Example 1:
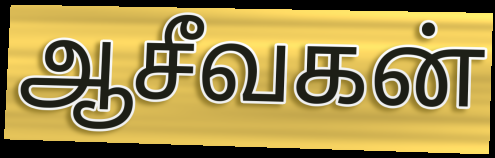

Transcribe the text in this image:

ஆசீவகன்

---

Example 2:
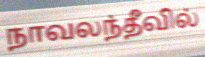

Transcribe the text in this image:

நாவலந்தீவில்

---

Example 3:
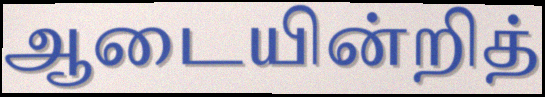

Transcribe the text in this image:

ஆடையின்றித்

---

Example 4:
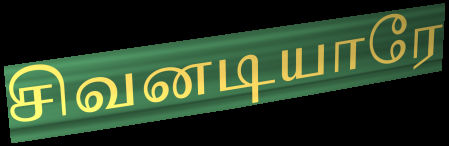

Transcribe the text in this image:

சிவனடியாரே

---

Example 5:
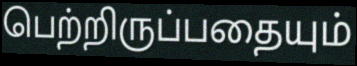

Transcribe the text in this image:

பெற்றிருப்பதையும்